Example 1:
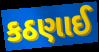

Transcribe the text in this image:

કઠણાઈ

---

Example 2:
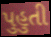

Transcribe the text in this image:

પુહુતી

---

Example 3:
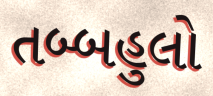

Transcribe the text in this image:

તબ્બહુલો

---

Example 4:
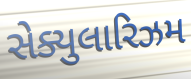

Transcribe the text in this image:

સેક્યુલારિઝમ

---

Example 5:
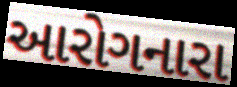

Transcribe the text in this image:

આરોગનારા